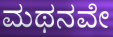
ಮಥನವೇ